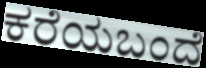
ಕರೆಯಬಂದೆ